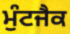
ਮੁੰਟਜੈਕ